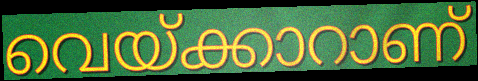
വെയ്ക്കാറാണ്